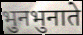
भुनभुनाते